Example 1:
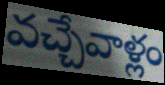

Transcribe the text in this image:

వచ్చేవాళ్లం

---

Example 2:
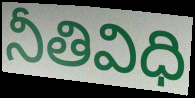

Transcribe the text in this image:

నీతివిధి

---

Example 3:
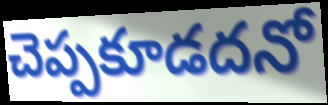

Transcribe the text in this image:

చెప్పకూడదనో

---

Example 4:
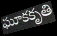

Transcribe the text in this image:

ఘూకకృతి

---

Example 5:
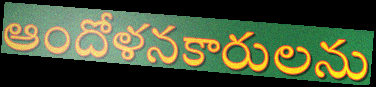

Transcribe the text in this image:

ఆందోళనకారులను